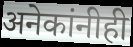
अनेकांनीही